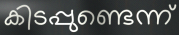
കിടപ്പുണ്ടെന്ന്